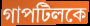
গাপটিলকে